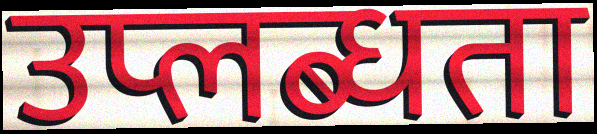
उप्लब्धता